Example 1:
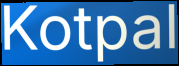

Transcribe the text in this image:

Kotpal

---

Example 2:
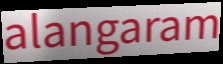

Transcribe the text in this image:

alangaram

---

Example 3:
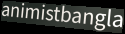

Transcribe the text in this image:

animistbangla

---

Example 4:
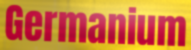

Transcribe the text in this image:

Germanium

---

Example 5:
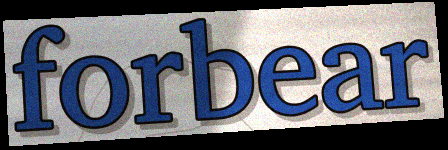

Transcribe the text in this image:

forbear